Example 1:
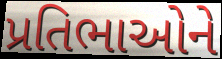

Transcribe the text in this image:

પ્રતિભાઓને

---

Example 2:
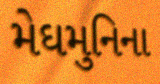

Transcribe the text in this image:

મેઘમુનિના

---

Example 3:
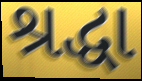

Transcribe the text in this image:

શ્રદ્ધા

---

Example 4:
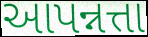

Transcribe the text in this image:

આપન્નત્તા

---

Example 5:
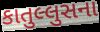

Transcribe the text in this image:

કાતુલ્લુસના